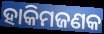
ହାକିମଜଣକ